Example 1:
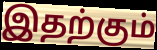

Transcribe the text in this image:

இதற்கும்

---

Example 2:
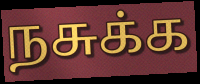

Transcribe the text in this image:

நசுக்க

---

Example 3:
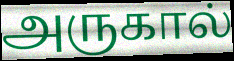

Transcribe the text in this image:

அருகால்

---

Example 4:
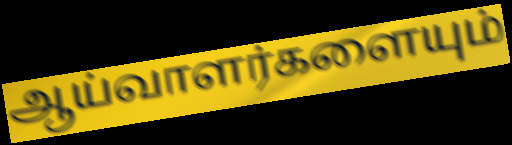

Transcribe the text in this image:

ஆய்வாளர்களையும்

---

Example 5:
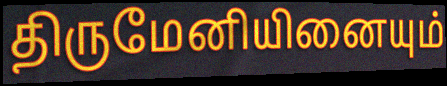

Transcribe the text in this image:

திருமேனியினையும்